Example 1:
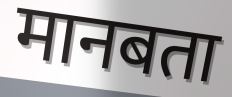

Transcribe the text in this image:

मानबता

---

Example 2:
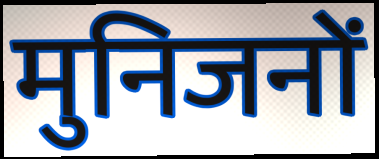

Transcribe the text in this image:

मुनिजनों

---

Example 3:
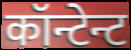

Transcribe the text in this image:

कॉन्टेन्ट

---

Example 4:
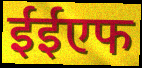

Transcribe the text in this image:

ईईएफ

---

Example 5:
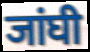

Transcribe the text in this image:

जांघी